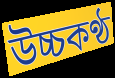
উচ্চকণ্ঠ